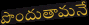
పొందుతామనే